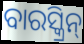
ବାରସ୍କ୍ରିନ୍